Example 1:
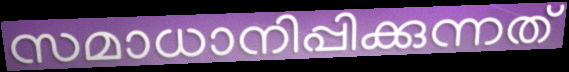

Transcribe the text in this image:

സമാധാനിപ്പിക്കുന്നത്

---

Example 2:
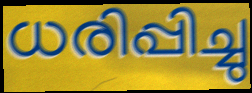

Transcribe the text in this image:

ധരിപ്പിച്ചു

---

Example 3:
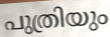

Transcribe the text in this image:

പുത്രിയും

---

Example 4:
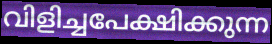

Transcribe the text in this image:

വിളിച്ചപേക്ഷിക്കുന്ന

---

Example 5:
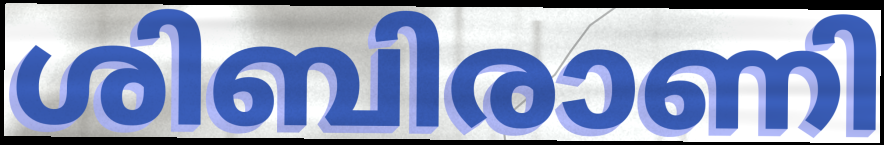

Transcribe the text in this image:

ശിബിരാണി